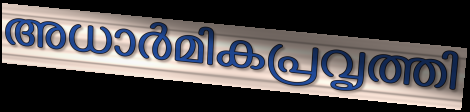
അധാർമികപ്രവൃത്തി